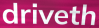
driveth